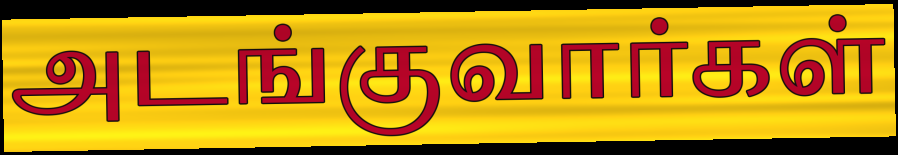
அடங்குவார்கள்